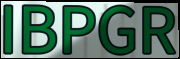
IBPGR